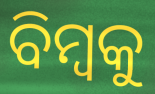
ବିମ୍ବକୁ